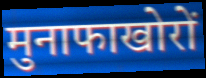
मुनाफाखोरों